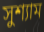
সুশ্যাম